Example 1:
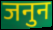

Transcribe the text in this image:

जनुन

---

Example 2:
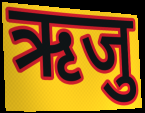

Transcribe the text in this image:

ऋजु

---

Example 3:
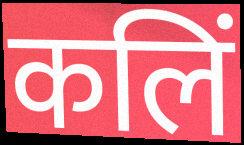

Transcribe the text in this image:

कलिं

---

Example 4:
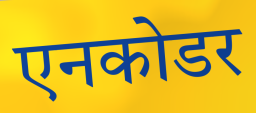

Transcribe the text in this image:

एनकोडर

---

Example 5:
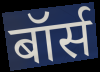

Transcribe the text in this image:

बॉर्स